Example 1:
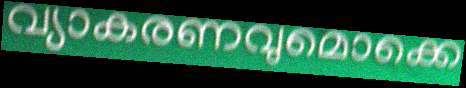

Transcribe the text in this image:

വ്യാകരണവുമൊക്കെ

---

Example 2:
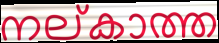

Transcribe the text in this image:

നല്കാത്ത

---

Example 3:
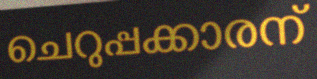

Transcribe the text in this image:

ചെറുപ്പക്കാരന്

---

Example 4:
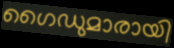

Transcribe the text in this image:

ഗൈഡുമാരായി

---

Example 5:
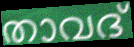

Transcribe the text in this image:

താവദ്